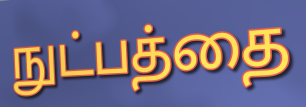
நுட்பத்தை